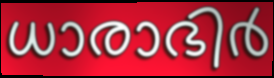
ധാരാഭിർ